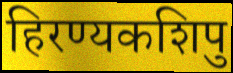
हिरण्यकशिपु